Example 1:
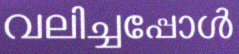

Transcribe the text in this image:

വലിച്ചപ്പോൾ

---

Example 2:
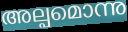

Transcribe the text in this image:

അല്പമൊന്നു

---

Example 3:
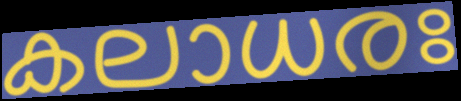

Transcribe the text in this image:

കലാധരഃ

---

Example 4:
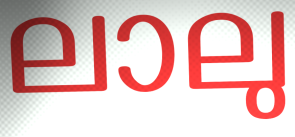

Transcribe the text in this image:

ലാലു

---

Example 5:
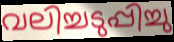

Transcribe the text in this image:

വലിച്ചടുപ്പിച്ചു